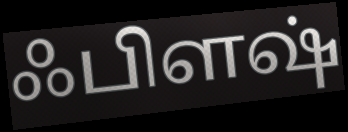
ஃபிளஷ்